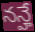
నన్హే